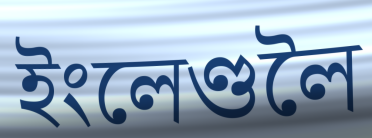
ইংলেণ্ডলৈ